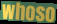
whoso